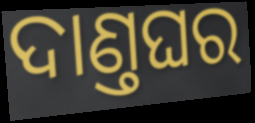
ଦାଣ୍ତଘର